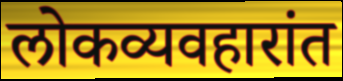
लोकव्यवहारांत